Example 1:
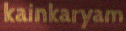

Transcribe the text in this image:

kainkaryam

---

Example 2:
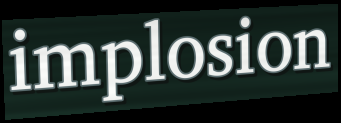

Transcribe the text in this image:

implosion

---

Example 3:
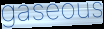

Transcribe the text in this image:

gaseous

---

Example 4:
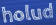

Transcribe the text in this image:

holud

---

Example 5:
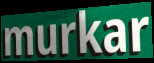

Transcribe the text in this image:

murkar